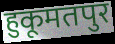
हुकूमतपुर